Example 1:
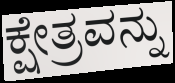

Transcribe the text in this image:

ಕ್ಷೇತ್ರವನ್ನು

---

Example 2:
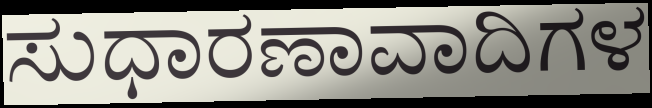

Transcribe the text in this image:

ಸುಧಾರಣಾವಾದಿಗಳ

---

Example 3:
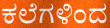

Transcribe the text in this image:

ಕಲೆಗಳಿಂದ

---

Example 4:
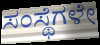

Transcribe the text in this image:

ಸಂಸ್ಥೆಗಳೇ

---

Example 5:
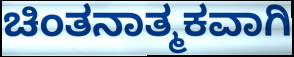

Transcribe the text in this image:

ಚಿಂತನಾತ್ಮಕವಾಗಿ